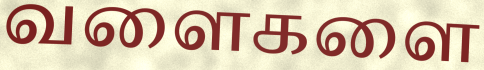
வளைகளை